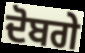
ਦੋਬਗੇ